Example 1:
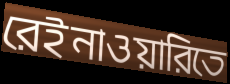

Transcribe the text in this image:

রেইনাওয়ারিতে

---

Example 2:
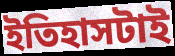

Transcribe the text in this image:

ইতিহাসটাই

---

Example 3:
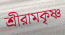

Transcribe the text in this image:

শ্রীরামকৃষ্ণ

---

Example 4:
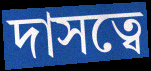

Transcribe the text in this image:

দাসত্বে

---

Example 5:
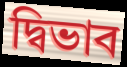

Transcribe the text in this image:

দ্বিভাব